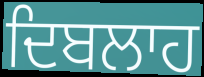
ਦਿਬਲਾਹ